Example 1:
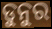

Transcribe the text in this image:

ଡୁନୁର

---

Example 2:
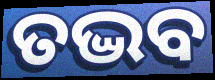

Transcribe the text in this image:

ତଦ୍ଭବ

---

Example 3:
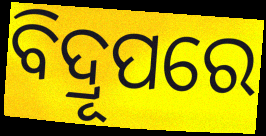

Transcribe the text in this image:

ବିଦ୍ରୂପରେ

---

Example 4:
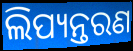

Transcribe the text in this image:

ଲିପ୍ୟନ୍ତରଣ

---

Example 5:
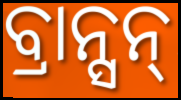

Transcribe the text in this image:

ବ୍ରାନ୍ସନ୍